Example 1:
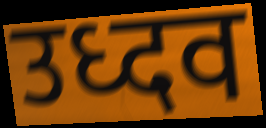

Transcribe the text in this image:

उध्दव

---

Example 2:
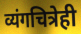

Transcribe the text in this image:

व्यंगचित्रेही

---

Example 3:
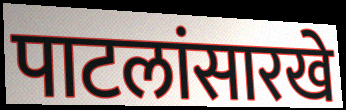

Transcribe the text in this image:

पाटलांसारखे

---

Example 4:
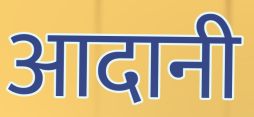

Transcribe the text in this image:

आदानी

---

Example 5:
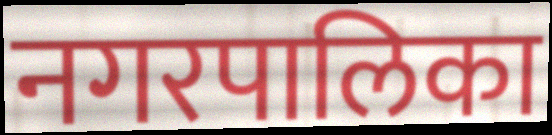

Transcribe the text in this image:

नगरपालिका